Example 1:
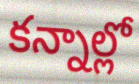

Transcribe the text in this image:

కన్నాల్లో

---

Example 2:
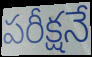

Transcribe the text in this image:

పరీక్షనే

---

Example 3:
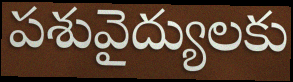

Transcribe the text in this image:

పశువైద్యులకు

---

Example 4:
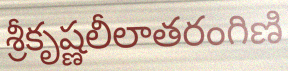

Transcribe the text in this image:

శ్రీకృష్ణలీలాతరంగిణి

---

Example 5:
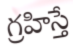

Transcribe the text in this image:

గ్రహిస్తే